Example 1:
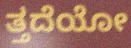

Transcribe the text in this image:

ತ್ತದೆಯೋ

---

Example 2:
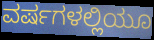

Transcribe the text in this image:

ವರ್ಷಗಳಲ್ಲಿಯೂ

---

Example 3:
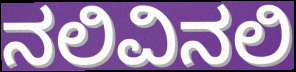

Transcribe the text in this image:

ನಲಿವಿನಲಿ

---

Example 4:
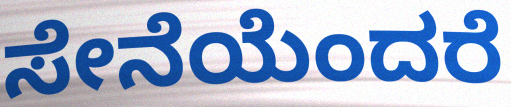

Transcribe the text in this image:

ಸೇನೆಯೆಂದರೆ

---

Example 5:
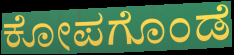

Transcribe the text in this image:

ಕೋಪಗೊಂಡೆ